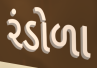
રંડોળા